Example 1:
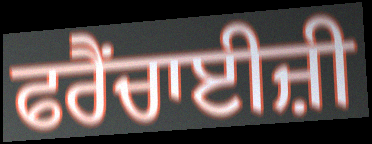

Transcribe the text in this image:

ਫਰੈਂਚਾਈਜ਼ੀ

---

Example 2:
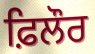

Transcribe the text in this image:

ਫ਼ਿਲੌਰ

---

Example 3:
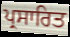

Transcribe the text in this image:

ਪ੍ਰਸਾਰਿਤ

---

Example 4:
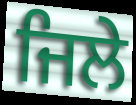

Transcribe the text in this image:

ਜਿਲੇ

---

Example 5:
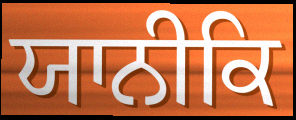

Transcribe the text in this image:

ਯਾਨੀਕਿ